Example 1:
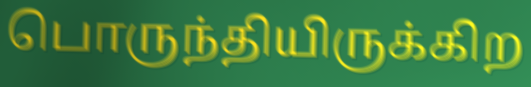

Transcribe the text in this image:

பொருந்தியிருக்கிற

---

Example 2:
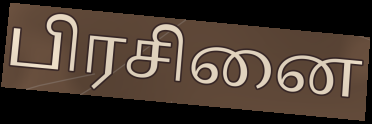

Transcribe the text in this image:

பிரசினை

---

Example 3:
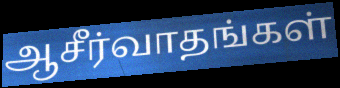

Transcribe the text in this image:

ஆசீர்வாதங்கள்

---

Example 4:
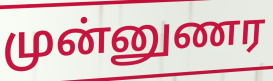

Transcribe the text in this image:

முன்னுணர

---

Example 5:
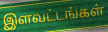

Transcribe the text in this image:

இளவட்டங்கள்